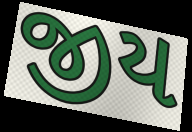
જીય